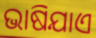
ଭାଷିଯାଏ